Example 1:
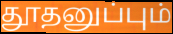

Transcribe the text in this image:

தூதனுப்பும்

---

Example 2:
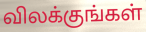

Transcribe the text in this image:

விலக்குங்கள்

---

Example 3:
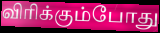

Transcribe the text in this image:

விரிக்கும்போது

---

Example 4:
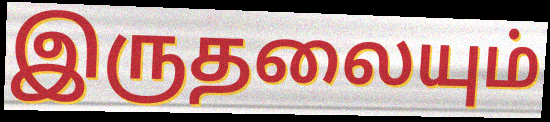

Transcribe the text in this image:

இருதலையும்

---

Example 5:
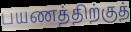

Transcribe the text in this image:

பயணத்திற்குத்